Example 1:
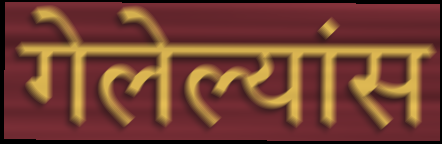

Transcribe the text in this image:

गेलेल्यांस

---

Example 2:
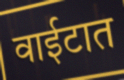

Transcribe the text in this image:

वाईटात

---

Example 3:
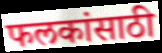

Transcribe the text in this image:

फलकांसाठी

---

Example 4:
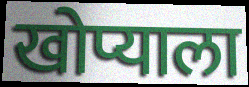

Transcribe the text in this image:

खोप्याला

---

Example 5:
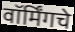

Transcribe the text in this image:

वॉर्मिंगचे